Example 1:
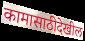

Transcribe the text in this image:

कामासाठीदेखील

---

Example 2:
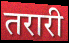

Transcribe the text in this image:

तरारी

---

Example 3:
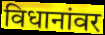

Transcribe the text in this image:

विधानांवर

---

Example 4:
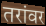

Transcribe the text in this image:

तरांवर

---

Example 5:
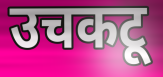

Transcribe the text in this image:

उचकटू